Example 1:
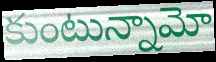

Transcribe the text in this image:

కుంటున్నామో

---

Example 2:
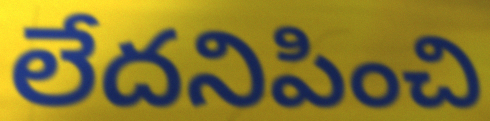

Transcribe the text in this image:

లేదనిపించి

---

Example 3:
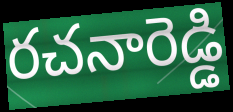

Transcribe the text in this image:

రచనారెడ్డి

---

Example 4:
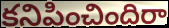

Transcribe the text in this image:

కనిపించిందిరా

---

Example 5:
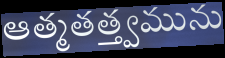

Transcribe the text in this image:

ఆత్మతత్త్వమును